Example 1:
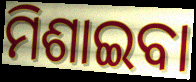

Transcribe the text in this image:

ମିଶାଇବା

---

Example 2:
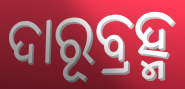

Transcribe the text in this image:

ଦାରୂବ୍ରହ୍ମ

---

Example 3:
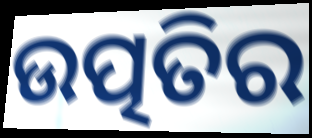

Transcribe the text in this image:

ଉତ୍ପତିର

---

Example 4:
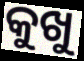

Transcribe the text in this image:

କୁଖୁ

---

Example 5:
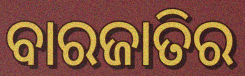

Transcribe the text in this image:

ବାରଜାତିର